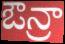
ఔన్రా